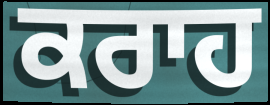
ਕਰਾਹ